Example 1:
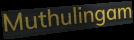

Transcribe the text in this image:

Muthulingam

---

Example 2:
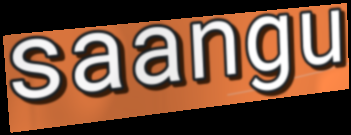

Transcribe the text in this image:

saangu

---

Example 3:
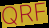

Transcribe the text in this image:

QRF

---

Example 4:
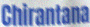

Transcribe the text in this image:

Chirantana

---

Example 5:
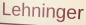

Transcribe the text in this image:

Lehninger